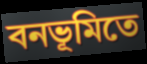
বনভূমিতে